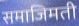
समाजिमती